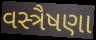
વસ્ત્રૈષણા